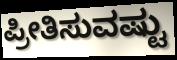
ಪ್ರೀತಿಸುವಷ್ಟು